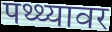
पथ्थ्यावर